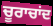
ਚੂਰਾਚਾਂਦ